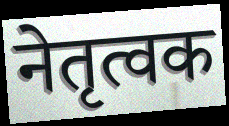
नेतृत्वक